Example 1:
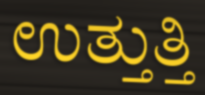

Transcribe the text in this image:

ಉತ್ತುತ್ತಿ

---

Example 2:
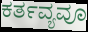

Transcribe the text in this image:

ಕರ್ತವ್ಯವೂ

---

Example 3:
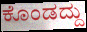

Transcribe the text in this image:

ಕೊಂಡದ್ದು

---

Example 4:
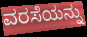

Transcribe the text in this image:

ವರಸೆಯನ್ನು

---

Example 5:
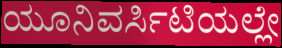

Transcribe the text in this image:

ಯೂನಿವರ್ಸಿಟಿಯಲ್ಲೇ